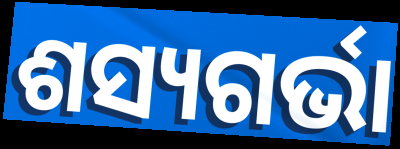
ଶସ୍ୟଗର୍ଭା